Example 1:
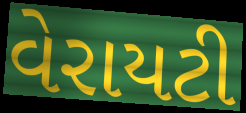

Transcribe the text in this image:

વેરાયટી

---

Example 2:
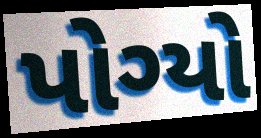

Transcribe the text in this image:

પોગ્યો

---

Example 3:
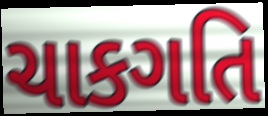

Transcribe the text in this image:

ચાકગતિ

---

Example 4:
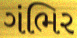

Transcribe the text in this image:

ગંભિર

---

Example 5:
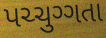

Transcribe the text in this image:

પચ્ચુગ્ગતા